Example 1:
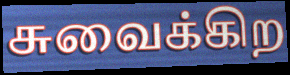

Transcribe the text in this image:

சுவைக்கிற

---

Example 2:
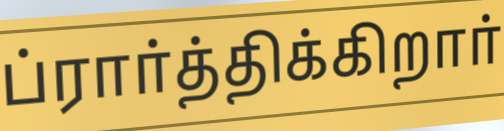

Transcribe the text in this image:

ப்ரார்த்திக்கிறார்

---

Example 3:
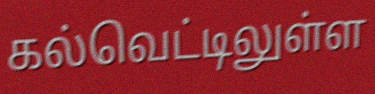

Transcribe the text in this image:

கல்வெட்டிலுள்ள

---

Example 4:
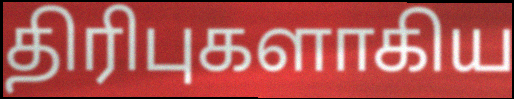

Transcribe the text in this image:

திரிபுகளாகிய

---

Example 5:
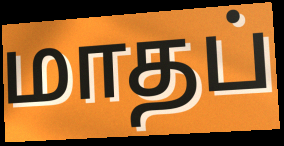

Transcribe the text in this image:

மாதப்